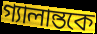
গ্যালান্তকে